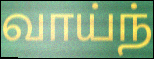
வாய்ந்